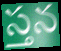
స్తన